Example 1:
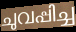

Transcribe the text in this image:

ചുവപ്പിച്ച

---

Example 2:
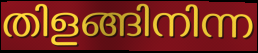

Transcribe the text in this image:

തിളങ്ങിനിന്ന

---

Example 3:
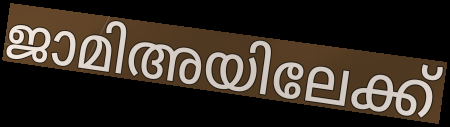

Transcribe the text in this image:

ജാമിഅയിലേക്ക്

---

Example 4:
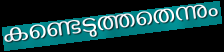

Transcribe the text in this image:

കണ്ടെടുത്തതെന്നും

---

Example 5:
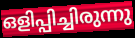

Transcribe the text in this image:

ഒളിപ്പിച്ചിരുന്നു